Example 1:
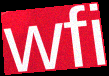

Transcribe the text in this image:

wfi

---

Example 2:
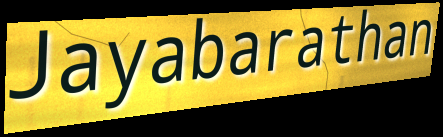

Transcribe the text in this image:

Jayabarathan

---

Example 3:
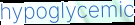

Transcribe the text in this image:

hypoglycemic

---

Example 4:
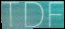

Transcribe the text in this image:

TDF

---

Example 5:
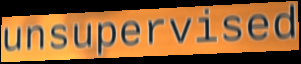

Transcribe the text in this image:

unsupervised